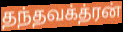
தந்தவக்த்ரன்